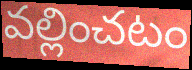
వల్లించటం